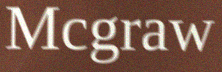
Mcgraw